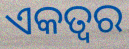
ଏକତ୍ବର